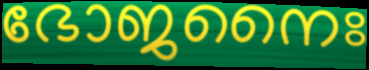
ഭോജനൈഃ